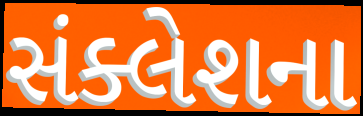
સંક્લેશના